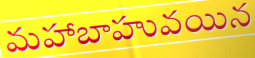
మహాబాహువయిన